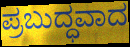
ಪ್ರಬುದ್ಧವಾದ